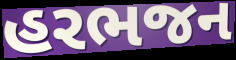
હરભજન